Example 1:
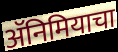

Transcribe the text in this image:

ॲनिमियाचा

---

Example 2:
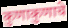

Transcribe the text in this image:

कुणाकुणाचे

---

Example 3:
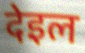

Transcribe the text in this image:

देइल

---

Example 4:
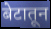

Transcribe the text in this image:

बेटातून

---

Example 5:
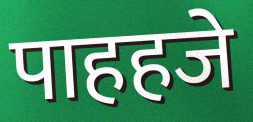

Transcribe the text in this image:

पाहहजे